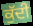
ਕੁੱਦੀ